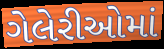
ગેલેરીઓમાં